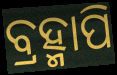
ବ୍ରହ୍ମାପି